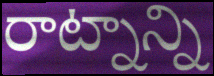
రాట్నాన్ని